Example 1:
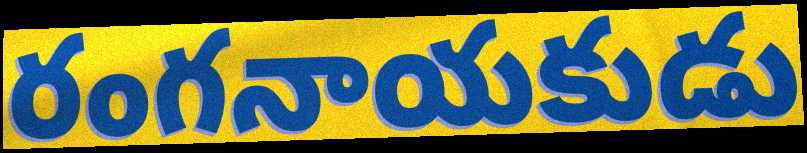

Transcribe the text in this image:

రంగనాయకుడు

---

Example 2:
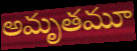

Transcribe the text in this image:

అమృతమూ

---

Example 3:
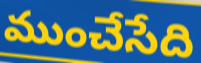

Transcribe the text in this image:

ముంచేసేది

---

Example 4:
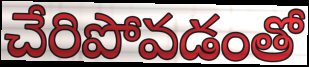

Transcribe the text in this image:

చేరిపోవడంతో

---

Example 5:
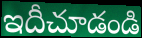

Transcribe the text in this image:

ఇదీచూడండి